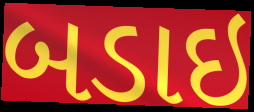
બડાઇ